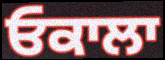
ਓਕਾਲਾ